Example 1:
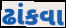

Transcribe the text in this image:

ઢાંકવા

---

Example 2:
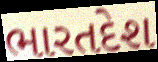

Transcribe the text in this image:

ભારતદેશ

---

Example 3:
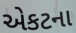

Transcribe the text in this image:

એકટના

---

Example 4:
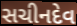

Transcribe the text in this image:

સચીનદેવ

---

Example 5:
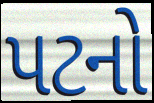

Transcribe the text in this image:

પટનો